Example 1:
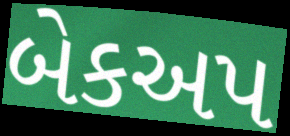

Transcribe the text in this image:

બેકઅપ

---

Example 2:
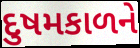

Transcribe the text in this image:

દુષમકાળને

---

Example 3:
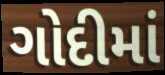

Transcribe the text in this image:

ગોદીમાં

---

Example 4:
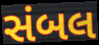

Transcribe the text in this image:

સંબલ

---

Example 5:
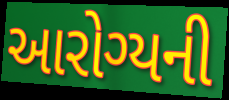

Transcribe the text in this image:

આરોગ્યની